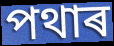
পথাৰ